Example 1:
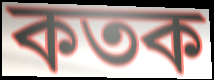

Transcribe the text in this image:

কতক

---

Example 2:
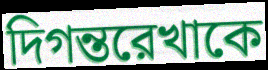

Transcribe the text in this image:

দিগন্তরেখাকে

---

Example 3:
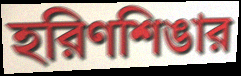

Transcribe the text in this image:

হরিণশিঙার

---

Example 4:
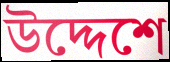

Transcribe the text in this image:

উদ্দেশে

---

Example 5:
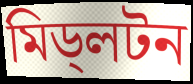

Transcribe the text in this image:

মিড্লটন